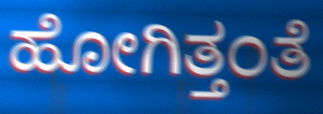
ಹೋಗಿತ್ತಂತೆ